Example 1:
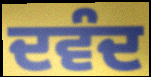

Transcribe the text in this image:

ਦਵੰਦ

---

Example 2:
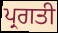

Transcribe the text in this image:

ਪ੍ਰਗਤੀ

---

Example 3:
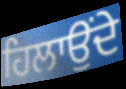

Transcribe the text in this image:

ਹਿਲਾਉਂਦੇ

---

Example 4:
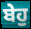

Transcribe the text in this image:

ਬੇਹੁ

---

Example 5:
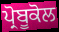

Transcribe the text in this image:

ਪ੍ਰੋਬੂਕੋਲ